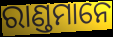
ରାଣ୍ଡମାନେ